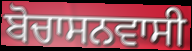
ਬੋਚਾਸਨਵਾਸੀ